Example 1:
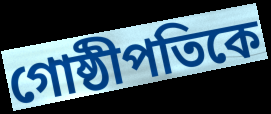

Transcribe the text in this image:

গোষ্ঠীপতিকে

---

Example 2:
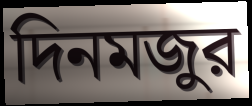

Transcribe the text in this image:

দিনমজুর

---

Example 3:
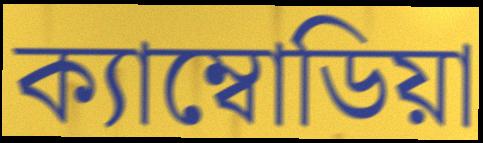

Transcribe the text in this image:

ক্যাম্বোডিয়া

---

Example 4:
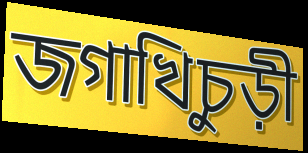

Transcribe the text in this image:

জগাখিচুড়ী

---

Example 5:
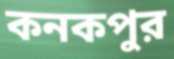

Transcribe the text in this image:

কনকপুর